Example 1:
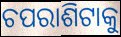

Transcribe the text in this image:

ଚପରାଶିଟାକୁ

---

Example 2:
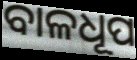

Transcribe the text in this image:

ବାଳଧୂପ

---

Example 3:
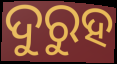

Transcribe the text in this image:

ଦୁରୁହ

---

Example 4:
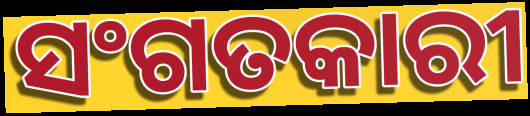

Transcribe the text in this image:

ସଂଗତକାରୀ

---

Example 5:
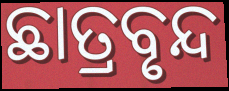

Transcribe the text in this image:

ଛାତ୍ରବୃନ୍ଦ